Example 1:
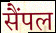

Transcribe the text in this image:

सैंपल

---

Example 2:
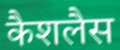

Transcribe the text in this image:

कैशलैस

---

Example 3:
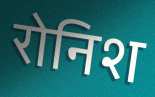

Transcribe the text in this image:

रोनिश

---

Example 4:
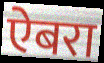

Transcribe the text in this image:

ऐबरा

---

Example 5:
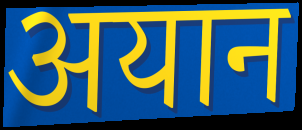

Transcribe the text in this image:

अयान